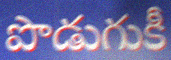
పొడుగుకీ